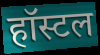
हॉस्टल